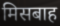
मिसबाह